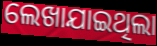
ଲେଖାଯାଇଥିଲା